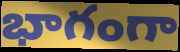
భాగంగా